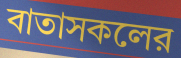
বাতাসকলের